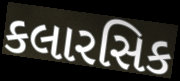
કલારસિક